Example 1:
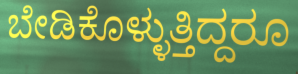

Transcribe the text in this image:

ಬೇಡಿಕೊಳ್ಳುತ್ತಿದ್ದರೂ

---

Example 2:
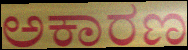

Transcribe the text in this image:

ಅಕಾರಣ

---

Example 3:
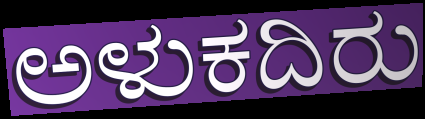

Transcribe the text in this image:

ಅಳುಕದಿರು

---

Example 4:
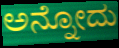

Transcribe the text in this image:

ಅನ್ನೋದು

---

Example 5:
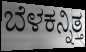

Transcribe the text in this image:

ಬೆಳಕನ್ನಿತ್ತ